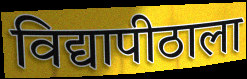
विद्यापीठाला